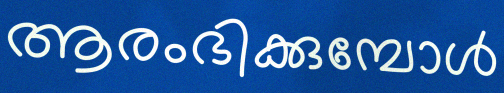
ആരംഭിക്കുമ്പോൾ